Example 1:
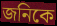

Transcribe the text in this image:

জনিকে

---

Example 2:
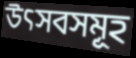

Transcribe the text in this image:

উৎসবসমূহ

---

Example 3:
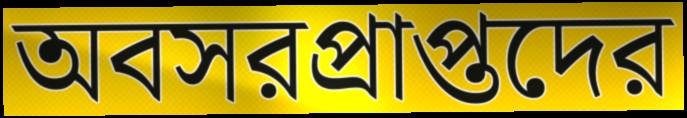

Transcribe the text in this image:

অবসরপ্রাপ্তদের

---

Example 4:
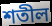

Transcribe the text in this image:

শতীল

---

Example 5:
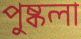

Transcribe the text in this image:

পুষ্কলা